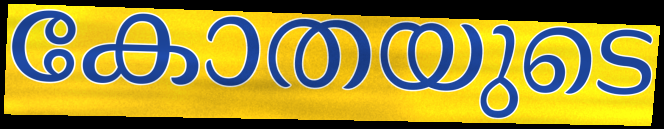
കോതയുടെ